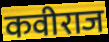
कवीराज